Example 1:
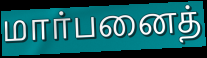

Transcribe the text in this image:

மார்பனைத்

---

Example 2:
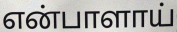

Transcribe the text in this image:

என்பாளாய்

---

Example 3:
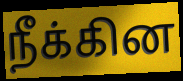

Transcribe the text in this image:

நீக்கின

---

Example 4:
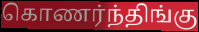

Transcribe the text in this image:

கொணர்ந்திங்கு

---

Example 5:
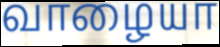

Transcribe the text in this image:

வாழையா